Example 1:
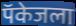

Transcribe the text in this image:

पॅकेजला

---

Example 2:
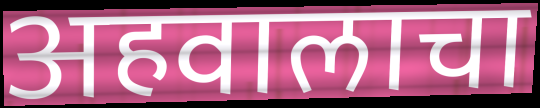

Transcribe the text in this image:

अहवालाचा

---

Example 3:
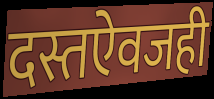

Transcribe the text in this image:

दस्तऐवजही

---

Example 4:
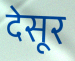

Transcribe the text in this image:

देसूर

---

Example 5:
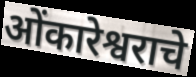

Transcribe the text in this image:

ओंकारेश्वराचे